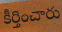
కీర్తించారు